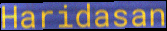
Haridasan